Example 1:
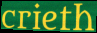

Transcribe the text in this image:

crieth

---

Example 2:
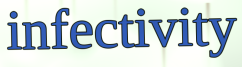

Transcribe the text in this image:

infectivity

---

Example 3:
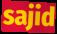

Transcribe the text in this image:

sajid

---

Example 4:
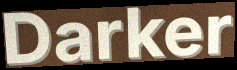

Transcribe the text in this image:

Darker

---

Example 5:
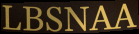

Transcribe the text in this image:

LBSNAA